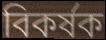
বিকৰ্ষক